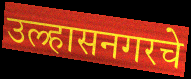
उल्हासनगरचे